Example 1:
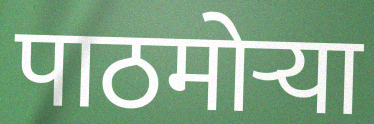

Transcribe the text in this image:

पाठमोऱ्या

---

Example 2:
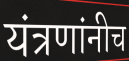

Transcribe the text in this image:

यंत्रणांनीच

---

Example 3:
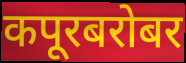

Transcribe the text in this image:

कपूरबरोबर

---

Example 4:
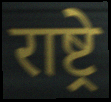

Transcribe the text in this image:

राष्ट्रे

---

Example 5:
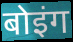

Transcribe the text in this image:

बोइंग